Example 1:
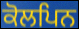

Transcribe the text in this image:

ਕੋਲਪਿਨ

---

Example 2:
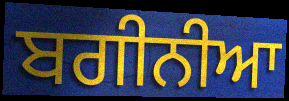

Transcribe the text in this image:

ਬਗੀਨੀਆ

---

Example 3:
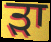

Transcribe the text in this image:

ੜਾ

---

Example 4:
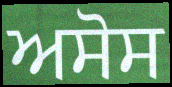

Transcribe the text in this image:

ਅਸੋਸ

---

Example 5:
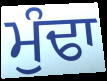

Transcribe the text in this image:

ਮੁੰਢਾ